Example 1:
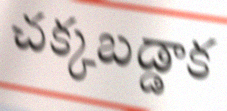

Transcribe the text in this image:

చక్కబడ్డాక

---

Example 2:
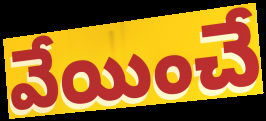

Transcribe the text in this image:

వేయించే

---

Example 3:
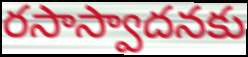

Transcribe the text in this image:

రసాస్వాదనకు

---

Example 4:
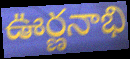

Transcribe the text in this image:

ఊర్ణనాభి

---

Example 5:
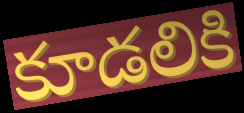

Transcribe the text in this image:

కూడలికి